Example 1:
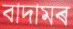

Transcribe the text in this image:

বাদামৰ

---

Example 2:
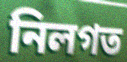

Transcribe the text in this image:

নিলগত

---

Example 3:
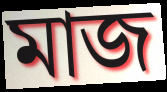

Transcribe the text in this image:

মাজ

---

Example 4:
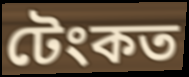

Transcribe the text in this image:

টেংকত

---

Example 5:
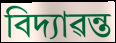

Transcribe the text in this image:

বিদ্যাৱন্ত